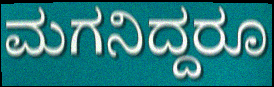
ಮಗನಿದ್ದರೂ